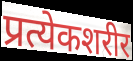
प्रत्येकशरीर